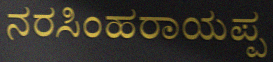
ನರಸಿಂಹರಾಯಪ್ಪ